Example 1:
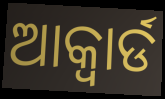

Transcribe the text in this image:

ଆକ୍ୱାର୍ଡ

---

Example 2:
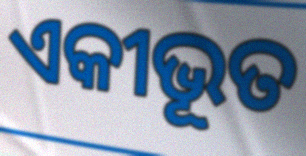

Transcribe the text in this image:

ଏକୀଭୂତ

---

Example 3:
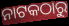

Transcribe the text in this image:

ନାଟକଠାରୁ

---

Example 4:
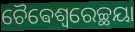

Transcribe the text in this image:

ଚୈଵେଶ୍ଵରେଚ୍ଛୟା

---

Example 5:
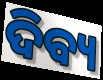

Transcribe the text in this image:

ଦିବ୍ୟ